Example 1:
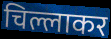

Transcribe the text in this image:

चिल्लाकर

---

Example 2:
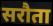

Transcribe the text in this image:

सरौता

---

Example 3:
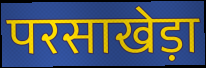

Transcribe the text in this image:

परसाखेड़ा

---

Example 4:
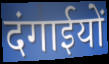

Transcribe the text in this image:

दंगाईयों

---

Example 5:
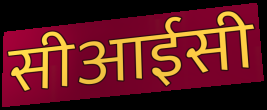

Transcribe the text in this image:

सीआईसी